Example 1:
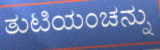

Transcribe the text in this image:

ತುಟಿಯಂಚನ್ನು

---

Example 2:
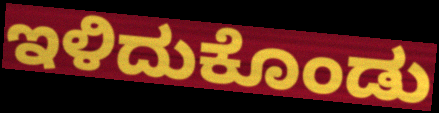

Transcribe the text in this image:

ಇಳಿದುಕೊಂಡು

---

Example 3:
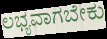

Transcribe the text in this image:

ಲಭ್ಯವಾಗಬೇಕು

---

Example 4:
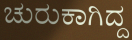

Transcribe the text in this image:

ಚುರುಕಾಗಿದ್ದ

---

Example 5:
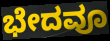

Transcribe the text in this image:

ಭೇದವೂ